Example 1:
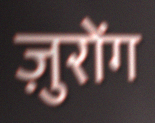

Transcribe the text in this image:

ज़ुरोंग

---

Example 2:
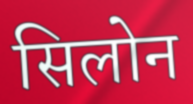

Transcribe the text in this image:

सिलोन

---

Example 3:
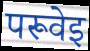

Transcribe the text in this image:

परूवेइ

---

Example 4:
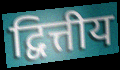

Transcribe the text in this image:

द्वित्तीय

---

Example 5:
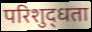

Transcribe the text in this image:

परिशुद्धता